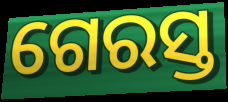
ଗେରସ୍ତ